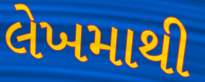
લેખમાથી